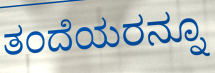
ತಂದೆಯರನ್ನೂ